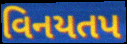
વિનયતપ